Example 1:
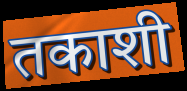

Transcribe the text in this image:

तकाशी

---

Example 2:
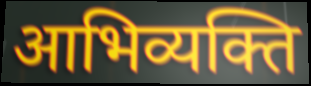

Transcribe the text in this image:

आभिव्यक्ति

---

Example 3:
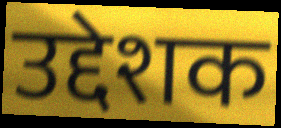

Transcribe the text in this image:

उद्देशक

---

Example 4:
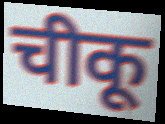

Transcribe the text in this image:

चीकू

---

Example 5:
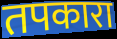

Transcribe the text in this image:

तपकारा